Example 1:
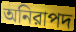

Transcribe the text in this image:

অনিরাপদ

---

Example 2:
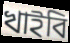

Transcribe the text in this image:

খাইবি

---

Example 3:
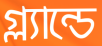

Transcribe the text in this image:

গ্ল্যান্ডে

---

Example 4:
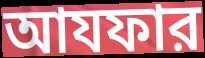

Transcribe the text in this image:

আযফার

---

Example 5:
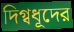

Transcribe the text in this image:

দিগ্বধূদের